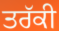
ਤਰੱਕੀ